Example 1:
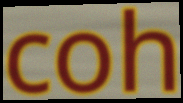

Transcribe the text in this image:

coh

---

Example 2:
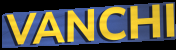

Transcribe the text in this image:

VANCHI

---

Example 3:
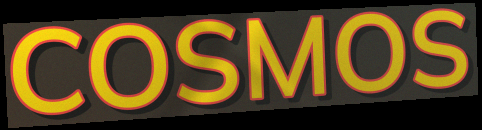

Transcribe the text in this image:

COSMOS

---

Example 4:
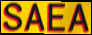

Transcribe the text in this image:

SAEA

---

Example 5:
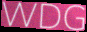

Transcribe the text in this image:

WDG